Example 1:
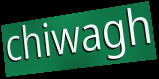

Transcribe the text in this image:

chiwagh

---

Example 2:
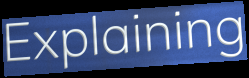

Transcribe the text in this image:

Explaining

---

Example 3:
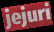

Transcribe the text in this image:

jejuri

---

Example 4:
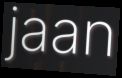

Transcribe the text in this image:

jaan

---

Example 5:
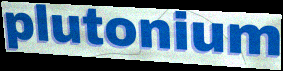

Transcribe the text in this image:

plutonium